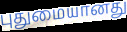
புதுமையானது